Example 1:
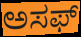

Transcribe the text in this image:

ಅಸಫ್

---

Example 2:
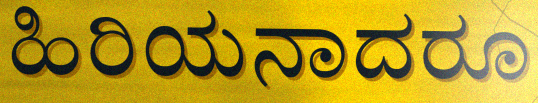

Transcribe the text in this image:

ಹಿರಿಯನಾದರೂ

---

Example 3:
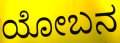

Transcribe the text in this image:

ಯೋಬನ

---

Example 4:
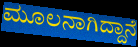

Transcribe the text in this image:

ಮೂಲನಾಗಿದ್ದಾನೆ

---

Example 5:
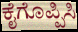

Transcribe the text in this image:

ಕೈಗೊಪ್ಪಿಸಿ